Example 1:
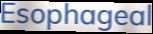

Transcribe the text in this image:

Esophageal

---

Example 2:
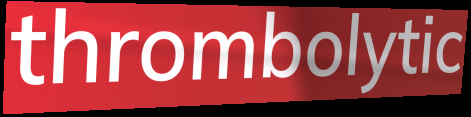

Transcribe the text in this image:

thrombolytic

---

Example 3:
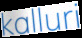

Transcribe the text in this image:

kalluri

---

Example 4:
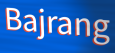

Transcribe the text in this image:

Bajrang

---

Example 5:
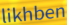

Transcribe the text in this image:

likhben